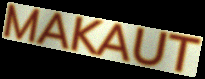
MAKAUT